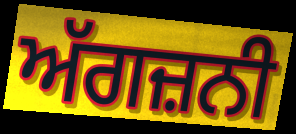
ਅੱਗਜ਼ਨੀ